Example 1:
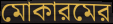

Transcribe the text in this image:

মোকারমের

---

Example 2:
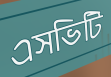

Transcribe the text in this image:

এসভিটি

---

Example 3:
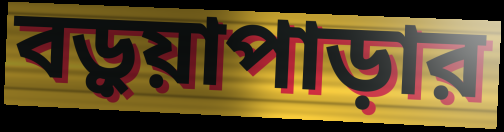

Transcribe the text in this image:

বড়ুয়াপাড়ার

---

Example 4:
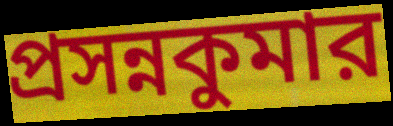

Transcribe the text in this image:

প্রসন্নকুমার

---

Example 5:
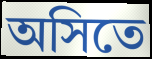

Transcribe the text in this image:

অসিতে